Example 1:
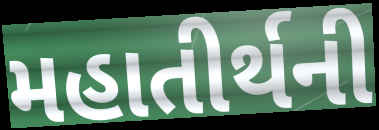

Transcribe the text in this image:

મહાતીર્થની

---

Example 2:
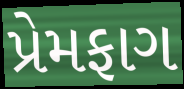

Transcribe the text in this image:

પ્રેમફાગ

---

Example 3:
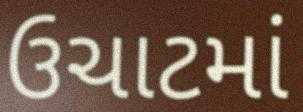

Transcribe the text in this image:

ઉચાટમાં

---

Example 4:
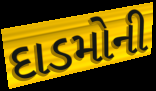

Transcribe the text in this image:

દાડમોની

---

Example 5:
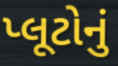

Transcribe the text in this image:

પ્લૂટોનું